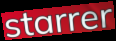
starrer